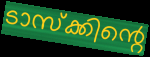
ടാസ്ക്കിന്റെ